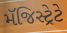
મૅજિસ્ટ્રેટે